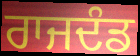
ਰਾਜਦੰਡ